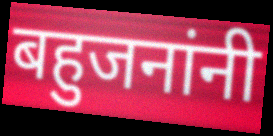
बहुजनांनी